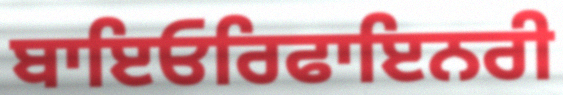
ਬਾਇਓਰਿਫਾਇਨਰੀ